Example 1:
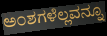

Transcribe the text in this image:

ಅಂಶಗಳೆಲ್ಲವನ್ನೂ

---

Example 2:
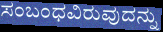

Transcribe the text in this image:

ಸಂಬಂಧವಿರುವುದನ್ನು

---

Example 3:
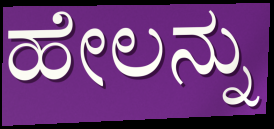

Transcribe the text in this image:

ಹೇಲನ್ನು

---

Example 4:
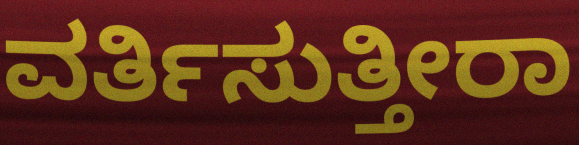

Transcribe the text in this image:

ವರ್ತಿಸುತ್ತೀರಾ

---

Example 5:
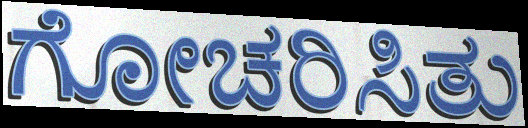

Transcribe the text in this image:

ಗೋಚರಿಸಿತು